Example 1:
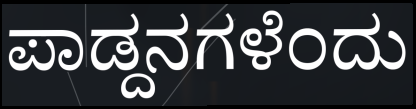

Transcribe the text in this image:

ಪಾಡ್ದನಗಳೆಂದು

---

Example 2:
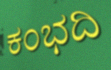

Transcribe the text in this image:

ಕಂಭದಿ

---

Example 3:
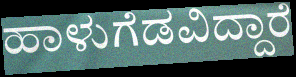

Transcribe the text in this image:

ಹಾಳುಗೆಡವಿದ್ದಾರೆ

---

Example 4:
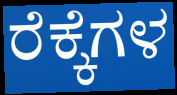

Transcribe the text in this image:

ರೆಕ್ಕೆಗಳ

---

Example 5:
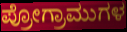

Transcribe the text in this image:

ಪ್ರೋಗ್ರಾಮುಗಳ